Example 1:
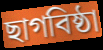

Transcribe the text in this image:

ছাগবিষ্ঠা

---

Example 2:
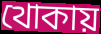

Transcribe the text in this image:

থোকায়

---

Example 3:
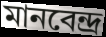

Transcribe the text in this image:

মানবেন্দ্র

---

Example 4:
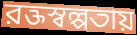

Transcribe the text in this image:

রক্তস্বল্পতায়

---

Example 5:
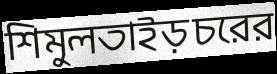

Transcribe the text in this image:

শিমুলতাইড়চরের